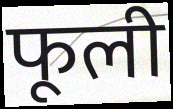
फूली